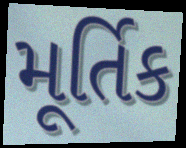
મૂર્તિક